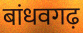
बांधवगढ़